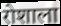
रोशाला